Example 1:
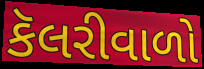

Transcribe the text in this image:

કૅલરીવાળો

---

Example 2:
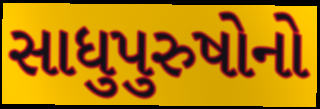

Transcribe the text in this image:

સાધુપુરુષોનો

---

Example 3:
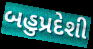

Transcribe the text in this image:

બહુપ્રદેશી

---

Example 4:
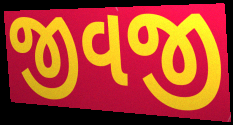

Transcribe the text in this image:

જીવજી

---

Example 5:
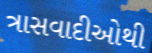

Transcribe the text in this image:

ત્રાસવાદીઓથી